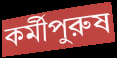
কর্মীপুরুষ